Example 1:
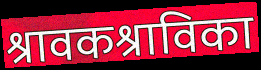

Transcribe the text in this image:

श्रावकश्राविका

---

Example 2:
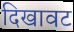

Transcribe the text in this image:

दिखावट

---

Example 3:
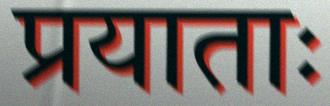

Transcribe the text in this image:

प्रयाताः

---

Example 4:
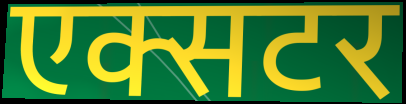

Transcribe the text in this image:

एक्सटर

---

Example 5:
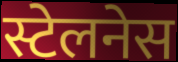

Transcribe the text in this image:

स्टेलनेस